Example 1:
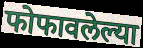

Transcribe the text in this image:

फोफावलेल्या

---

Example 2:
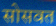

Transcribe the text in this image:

सोसवत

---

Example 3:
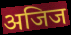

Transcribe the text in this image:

अजिज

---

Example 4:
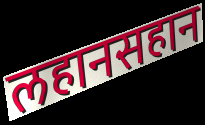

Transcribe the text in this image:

लहानसहान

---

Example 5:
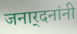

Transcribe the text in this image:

जनार्दनांनी